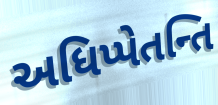
અધિપ્પેતન્તિ